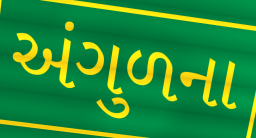
અંગુળના